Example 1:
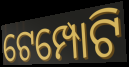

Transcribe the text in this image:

ଟେମ୍ପୋଟି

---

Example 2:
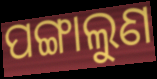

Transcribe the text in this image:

ପଙ୍ଗାଲୁଣ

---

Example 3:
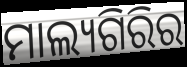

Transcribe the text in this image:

ମାଲ୍ୟଗିରିର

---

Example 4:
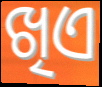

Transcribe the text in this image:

ଖିଏ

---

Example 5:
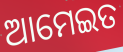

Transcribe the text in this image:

ଆମେଇତ